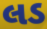
લડ